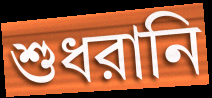
শুধরানি